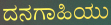
ದನಗಾಹಿಯು